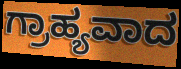
ಗ್ರಾಹ್ಯವಾದ